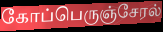
கோப்பெருஞ்சேரல்